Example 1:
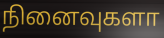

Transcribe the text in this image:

நினைவுகளா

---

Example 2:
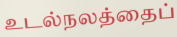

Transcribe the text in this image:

உடல்நலத்தைப்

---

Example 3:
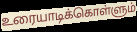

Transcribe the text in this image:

உரையாடிக்கொள்ளும்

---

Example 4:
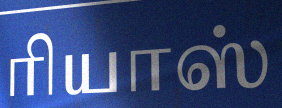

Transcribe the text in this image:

ரியாஸ்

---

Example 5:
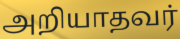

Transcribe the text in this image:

அறியாதவர்